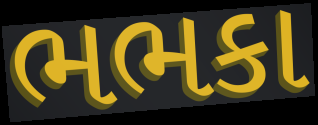
ભભકા